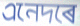
এনেদৰে